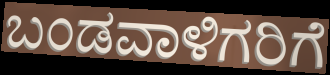
ಬಂಡವಾಳಿಗರಿಗೆ